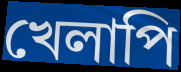
খেলাপি